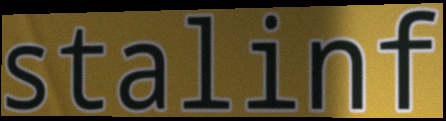
stalinf